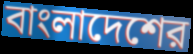
বাংলাদেশের